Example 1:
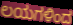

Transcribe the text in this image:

ಲಯಗಳಿಂದ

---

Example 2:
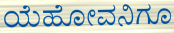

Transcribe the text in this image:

ಯೆಹೋವನಿಗೂ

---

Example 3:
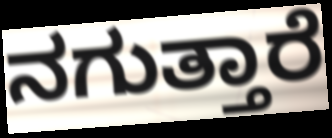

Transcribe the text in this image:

ನಗುತ್ತಾರೆ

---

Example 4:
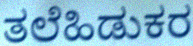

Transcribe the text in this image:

ತಲೆಹಿಡುಕರ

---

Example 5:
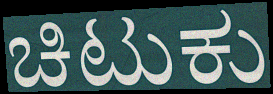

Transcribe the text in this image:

ಚಿಟುಕು